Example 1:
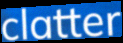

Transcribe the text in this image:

clatter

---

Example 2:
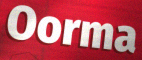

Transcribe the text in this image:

Oorma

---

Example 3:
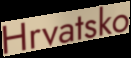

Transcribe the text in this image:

Hrvatsko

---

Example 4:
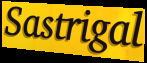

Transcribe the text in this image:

Sastrigal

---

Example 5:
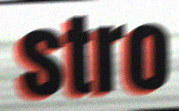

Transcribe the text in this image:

stro